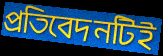
প্রতিবেদনটিই